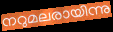
നറുമലരായിന്നു